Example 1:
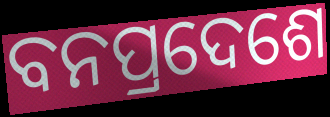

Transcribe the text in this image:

ବନପ୍ରଦେଶେ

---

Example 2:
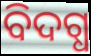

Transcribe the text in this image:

ବିଦଗ୍ଧ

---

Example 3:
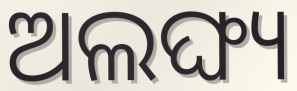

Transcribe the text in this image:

ଅଲଙ୍ଘ୍ୟ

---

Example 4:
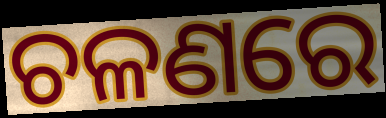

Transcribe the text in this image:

ଚଳଣରେ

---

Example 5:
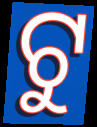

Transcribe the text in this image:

ଟୁ